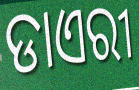
ଡାଏରୀ